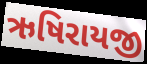
ઋષિરાયજી